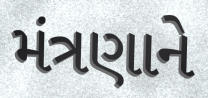
મંત્રણાને